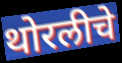
थोरलीचे